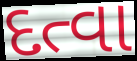
દત્વા